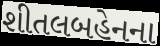
શીતલબહેનના